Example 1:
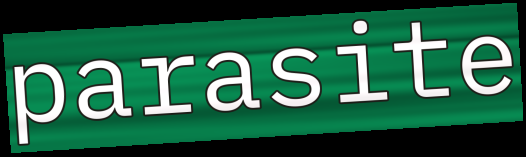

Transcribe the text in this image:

parasite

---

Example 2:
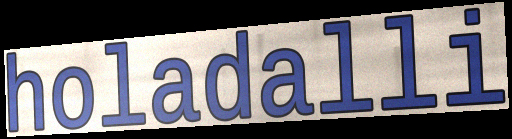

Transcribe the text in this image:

holadalli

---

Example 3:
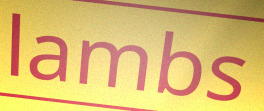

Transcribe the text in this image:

lambs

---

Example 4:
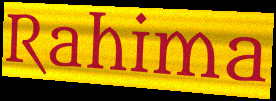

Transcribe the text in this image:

Rahima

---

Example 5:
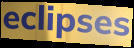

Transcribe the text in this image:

eclipses